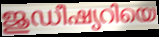
ജുഡീഷ്യറിയെ